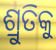
ଶ୍ରୁତିକୁ